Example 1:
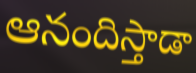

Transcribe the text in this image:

ఆనందిస్తాడా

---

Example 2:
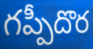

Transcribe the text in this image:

గప్పీదొర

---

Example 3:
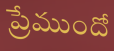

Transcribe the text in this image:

ప్రేముందో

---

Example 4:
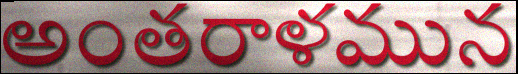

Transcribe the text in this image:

అంతరాళమున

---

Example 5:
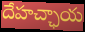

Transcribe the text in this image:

దేహచ్ఛాయ